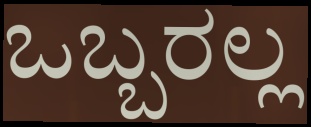
ಒಬ್ಬರಲ್ಲ